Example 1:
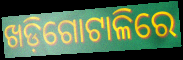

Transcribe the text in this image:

ଖଡ଼ିଗୋଟାଳିରେ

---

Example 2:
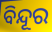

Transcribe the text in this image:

ବିନ୍ଦୂର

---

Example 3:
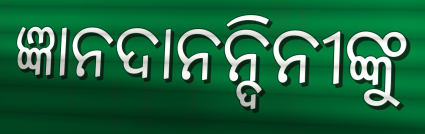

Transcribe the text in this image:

ଜ୍ଞାନଦାନନ୍ଦିନୀଙ୍କୁ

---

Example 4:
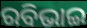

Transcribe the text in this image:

ରବିଭାଇ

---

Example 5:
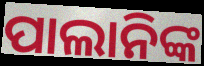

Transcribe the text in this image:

ପାଲାନିଙ୍କ